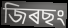
জিৰছং